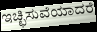
ಇಚ್ಛಿಸುವೆಯಾದರೆ